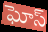
ఘోస్